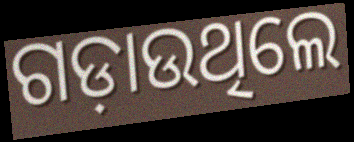
ଗଡ଼ାଉଥିଲେ